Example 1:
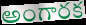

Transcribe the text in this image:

అంగారక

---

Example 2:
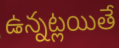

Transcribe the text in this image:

ఉన్నట్లయితే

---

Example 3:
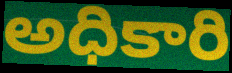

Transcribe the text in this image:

అధికారి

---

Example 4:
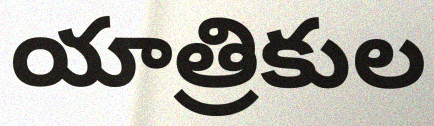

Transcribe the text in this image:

యాత్రికుల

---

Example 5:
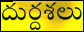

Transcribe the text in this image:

దుర్దశలు